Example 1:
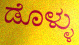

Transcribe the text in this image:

ಡೊಳ್ಳು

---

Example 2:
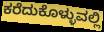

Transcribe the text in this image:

ಕರೆದುಕೊಳ್ಳುವಲ್ಲಿ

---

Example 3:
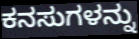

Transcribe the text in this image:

ಕನಸುಗಳನ್ನು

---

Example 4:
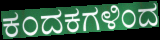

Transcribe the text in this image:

ಕಂದಕಗಳಿಂದ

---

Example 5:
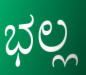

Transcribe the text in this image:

ಭಲ್ಲ